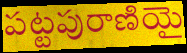
పట్టపురాణియై